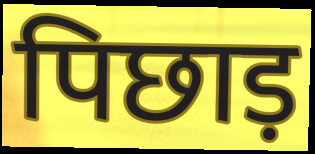
पिछाड़